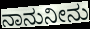
ನಾನುನೀನು